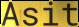
Asit